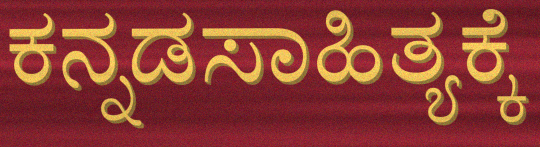
ಕನ್ನಡಸಾಹಿತ್ಯಕ್ಕೆ